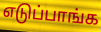
எடுப்பாங்க